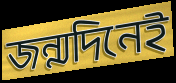
জন্মদিনেই